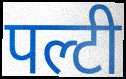
पल्टी